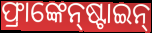
ଫ୍ରାଙ୍କେନ୍‌ଷ୍ଟାଇନ୍